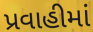
પ્રવાહીમાં